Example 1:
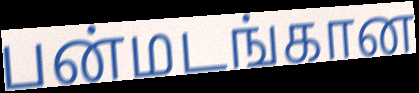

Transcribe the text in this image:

பன்மடங்கான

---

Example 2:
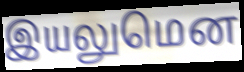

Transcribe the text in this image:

இயலுமென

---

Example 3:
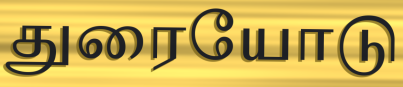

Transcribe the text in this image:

துரையோடு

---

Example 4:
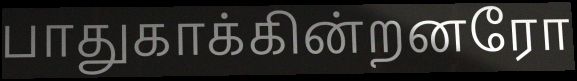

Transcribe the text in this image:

பாதுகாக்கின்றனரோ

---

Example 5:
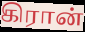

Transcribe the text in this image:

கிரான்